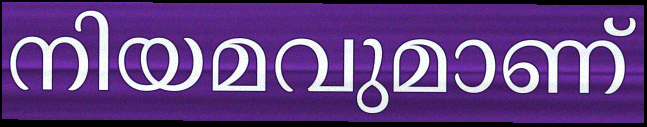
നിയമവുമാണ്